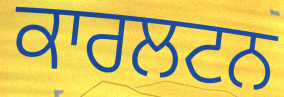
ਕਾਰਲਟਨ